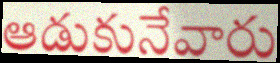
ఆడుకునేవారు